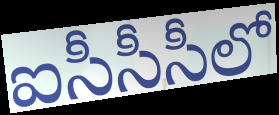
ఐసీసీసీలో